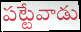
పట్టేవాడు